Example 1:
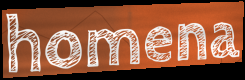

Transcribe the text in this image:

homena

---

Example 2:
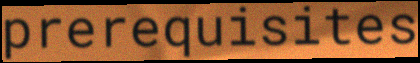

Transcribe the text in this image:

prerequisites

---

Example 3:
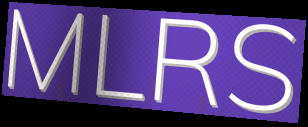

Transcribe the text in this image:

MLRS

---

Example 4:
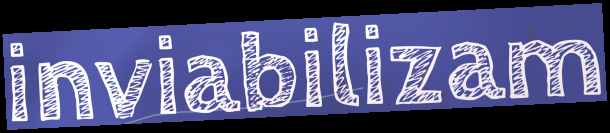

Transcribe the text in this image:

inviabilizam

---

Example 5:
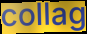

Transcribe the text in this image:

collag